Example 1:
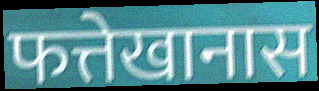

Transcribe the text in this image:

फत्तेखानास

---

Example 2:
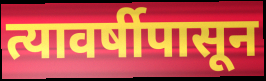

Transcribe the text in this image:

त्यावर्षीपासून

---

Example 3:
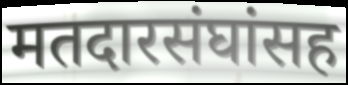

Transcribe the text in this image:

मतदारसंघांसह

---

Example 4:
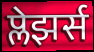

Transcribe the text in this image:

प्लेझर्स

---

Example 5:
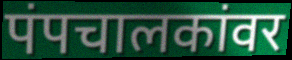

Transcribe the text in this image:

पंपचालकांवर